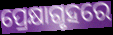
ପ୍ରେକ୍ଷାଗୃହରେ